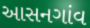
આસનગાંવ